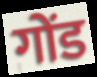
गोंड